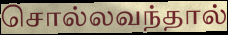
சொல்லவந்தால்